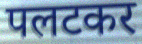
पलटकर